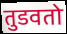
तुडवतो